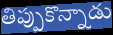
తిప్పుకొన్నాడు